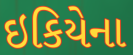
ઇકિયેના